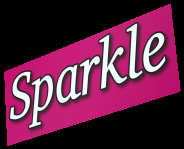
Sparkle